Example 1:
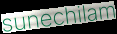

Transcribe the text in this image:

sunechilam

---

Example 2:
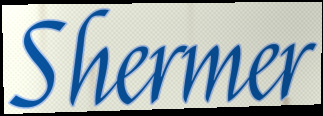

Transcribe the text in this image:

Shermer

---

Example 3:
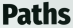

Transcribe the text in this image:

Paths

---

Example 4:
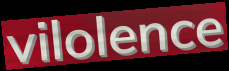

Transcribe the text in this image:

vilolence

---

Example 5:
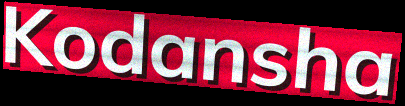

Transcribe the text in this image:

Kodansha